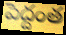
పెద్దంత